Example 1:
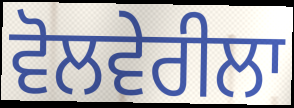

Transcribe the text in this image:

ਵੋਲਵੇਰੀਲਾ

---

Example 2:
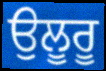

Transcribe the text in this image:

ਉਲੂਰੂ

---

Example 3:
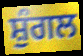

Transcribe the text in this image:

ਸ਼ੁੰਗਲ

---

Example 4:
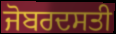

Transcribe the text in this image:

ਜੋਬਰਦਸਤੀ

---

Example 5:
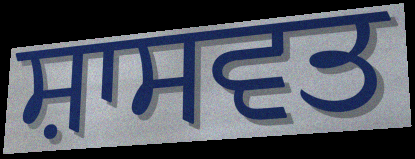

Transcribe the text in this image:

ਸ਼ਾਸਵਤ